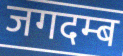
जगदम्ब